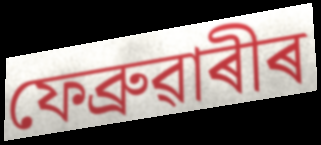
ফেব্ৰুৱাৰীৰ